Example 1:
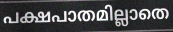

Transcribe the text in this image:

പക്ഷപാതമില്ലാതെ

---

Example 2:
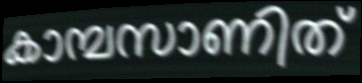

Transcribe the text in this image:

കാമ്പസാണിത്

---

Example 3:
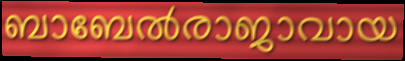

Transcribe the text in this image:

ബാബേൽരാജാവായ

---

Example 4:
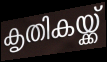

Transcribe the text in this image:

കൃതികയ്ക്ക്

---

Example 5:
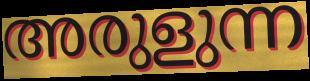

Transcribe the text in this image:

അരുളുന്ന